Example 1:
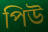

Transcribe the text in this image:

পিউ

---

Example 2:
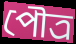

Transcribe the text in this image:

পৌত্র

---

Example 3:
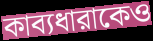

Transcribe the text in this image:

কাব্যধারাকেও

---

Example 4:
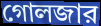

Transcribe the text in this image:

গোলজার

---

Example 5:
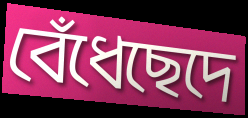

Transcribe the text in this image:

বেঁধেছেদে